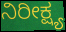
ನಿರೀಕ್ಷ್ಯ